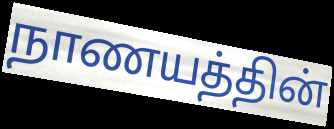
நாணயத்தின்